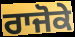
ਰਾਜੋਕੇ